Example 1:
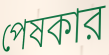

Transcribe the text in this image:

পেষকার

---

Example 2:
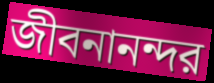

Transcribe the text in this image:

জীবনানন্দর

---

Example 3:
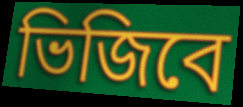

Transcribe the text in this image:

ভিজিবে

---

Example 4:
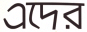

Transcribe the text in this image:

এদের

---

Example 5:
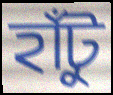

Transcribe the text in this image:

হাঁটু